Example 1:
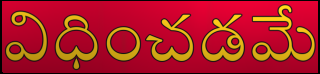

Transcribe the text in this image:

విధించడమే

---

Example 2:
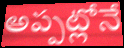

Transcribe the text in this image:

అప్పట్లోనే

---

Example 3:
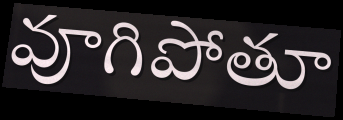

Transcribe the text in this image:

వూగిపోతూ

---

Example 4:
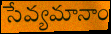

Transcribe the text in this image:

సేవ్యమానాం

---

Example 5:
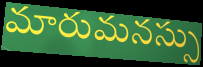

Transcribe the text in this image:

మారుమనస్సు